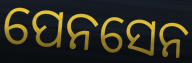
ପେନସେନ